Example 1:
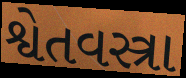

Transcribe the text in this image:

શ્વેતવસ્ત્રા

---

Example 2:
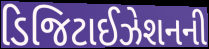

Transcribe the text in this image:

ડિજિટાઈઝેશનની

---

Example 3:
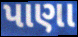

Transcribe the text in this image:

પાણા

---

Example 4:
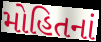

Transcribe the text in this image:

મોહિતનાં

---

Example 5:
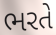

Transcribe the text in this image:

ભરતે